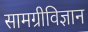
सामग्रीविज्ञान